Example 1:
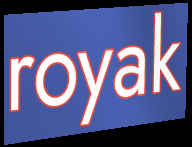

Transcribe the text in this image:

royak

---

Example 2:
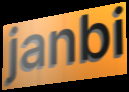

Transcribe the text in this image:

janbi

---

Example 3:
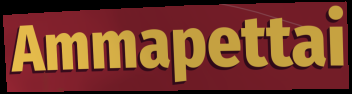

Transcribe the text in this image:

Ammapettai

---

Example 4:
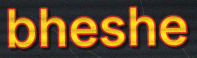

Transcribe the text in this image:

bheshe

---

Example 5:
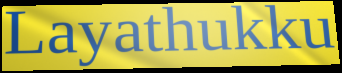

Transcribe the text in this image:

Layathukku